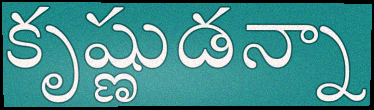
కృష్ణుడన్నా